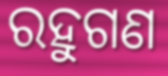
ରହୁଗଣ